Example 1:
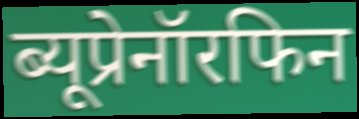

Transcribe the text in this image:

ब्यूप्रेनॉरफिन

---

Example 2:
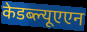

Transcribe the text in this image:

केडब्ल्यूएएन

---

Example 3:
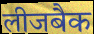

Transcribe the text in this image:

लीजबैक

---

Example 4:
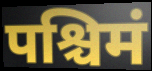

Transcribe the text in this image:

पश्चिमं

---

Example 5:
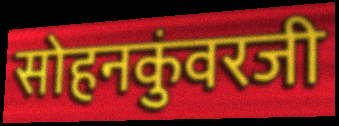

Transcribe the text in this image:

सोहनकुंवरजी